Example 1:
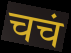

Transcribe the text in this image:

चचं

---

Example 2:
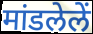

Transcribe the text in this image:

मांडलेलें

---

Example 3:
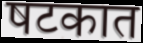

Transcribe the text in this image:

षटकात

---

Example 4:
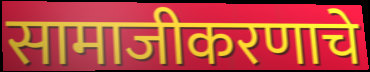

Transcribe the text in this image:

सामाजीकरणाचे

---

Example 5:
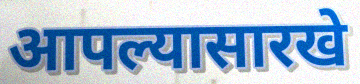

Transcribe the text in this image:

आपल्यासारखे